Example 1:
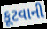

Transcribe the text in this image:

કૂટવાની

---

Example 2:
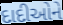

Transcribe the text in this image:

દાદીઓને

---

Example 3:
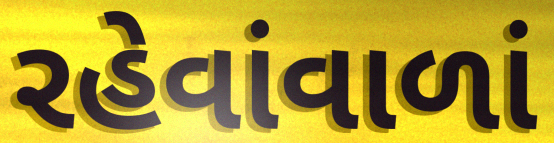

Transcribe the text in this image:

રહેવાંવાળાં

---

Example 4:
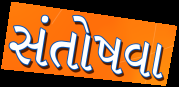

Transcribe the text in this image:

સંતોષવા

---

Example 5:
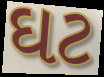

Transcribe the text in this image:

ઘટ